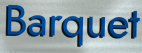
Barquet